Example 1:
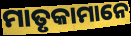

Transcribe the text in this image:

ମାତୃକାମାନେ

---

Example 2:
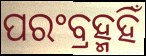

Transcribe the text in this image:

ପରଂବ୍ରହ୍ମହିଁ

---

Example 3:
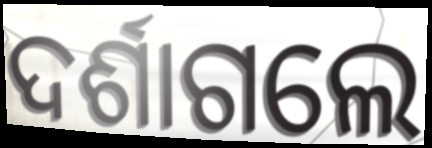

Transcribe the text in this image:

ଦର୍ଶାଗଲେ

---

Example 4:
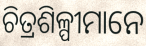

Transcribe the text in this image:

ଚିତ୍ରଶିଳ୍ପୀମାନେ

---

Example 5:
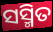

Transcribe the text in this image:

ସସ୍ମିତ